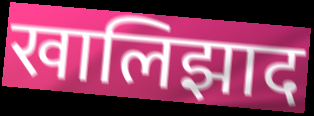
खालिझाद